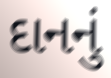
દાનનું